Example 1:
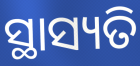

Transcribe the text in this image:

ସ୍ଥାସ୍ୟତି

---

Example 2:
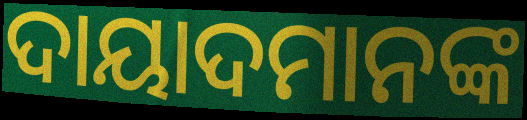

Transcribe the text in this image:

ଦାୟାଦମାନଙ୍କ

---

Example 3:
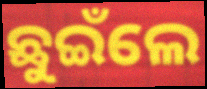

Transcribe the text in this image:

ଛୁଇଁଲେ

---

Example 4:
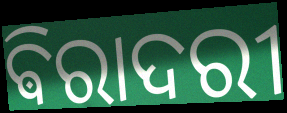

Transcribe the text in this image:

ଵିରାଦରୀ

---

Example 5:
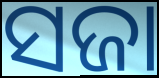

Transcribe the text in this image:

ସଜା